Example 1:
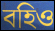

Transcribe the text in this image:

বহিও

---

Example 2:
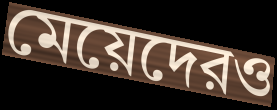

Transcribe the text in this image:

মেয়েদেরও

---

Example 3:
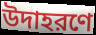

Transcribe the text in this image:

উদাহরণে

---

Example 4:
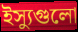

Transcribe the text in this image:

ইস্যুগুলো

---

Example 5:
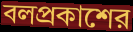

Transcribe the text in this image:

বলপ্রকাশের